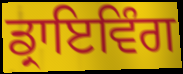
ਡ੍ਰਾਇਵਿੰਗ